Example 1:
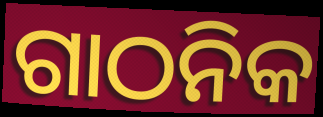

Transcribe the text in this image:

ଗାଠନିକ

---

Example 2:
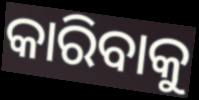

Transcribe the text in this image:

କାରିବାକୁ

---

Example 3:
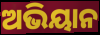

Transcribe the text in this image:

ଅଭିୟାନ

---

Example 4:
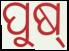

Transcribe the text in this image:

ପୁଷ୍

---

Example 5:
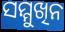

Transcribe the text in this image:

ସମ୍ମୁଖିନ